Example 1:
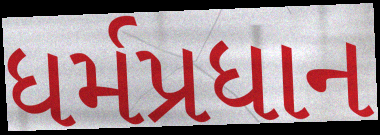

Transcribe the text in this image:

ધર્મપ્રધાન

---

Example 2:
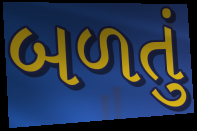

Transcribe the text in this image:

બળતું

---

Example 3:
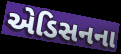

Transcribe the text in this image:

એડિસનના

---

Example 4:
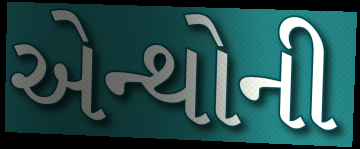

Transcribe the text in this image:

એન્થોની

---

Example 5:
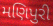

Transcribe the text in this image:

મણિપુરી